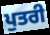
ਪੁਤਰੀ